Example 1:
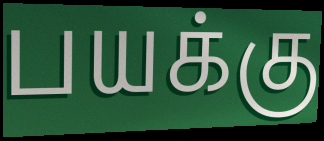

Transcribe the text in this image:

பயக்கு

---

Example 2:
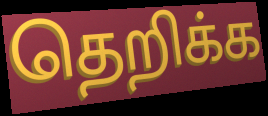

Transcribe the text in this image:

தெறிக்க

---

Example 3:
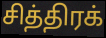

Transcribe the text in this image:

சித்திரக்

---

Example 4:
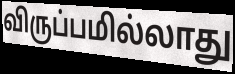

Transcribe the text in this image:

விருப்பமில்லாது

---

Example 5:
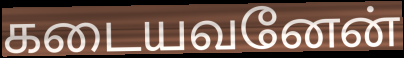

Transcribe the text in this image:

கடையவனேன்